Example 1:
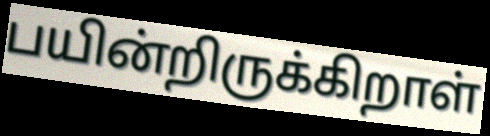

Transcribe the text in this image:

பயின்றிருக்கிறாள்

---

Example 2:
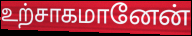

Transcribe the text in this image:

உற்சாகமானேன்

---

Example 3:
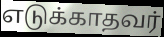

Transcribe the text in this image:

எடுக்காதவர்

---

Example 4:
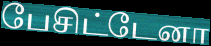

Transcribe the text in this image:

பேசிட்டேனா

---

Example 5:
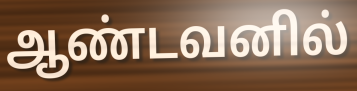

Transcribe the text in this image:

ஆண்டவனில்